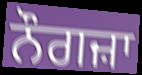
ਨੌਗਜ਼ਾ